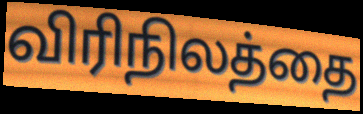
விரிநிலத்தை